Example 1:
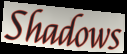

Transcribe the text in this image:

Shadows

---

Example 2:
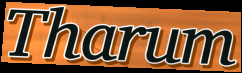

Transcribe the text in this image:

Tharum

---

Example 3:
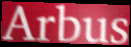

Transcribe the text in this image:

Arbus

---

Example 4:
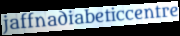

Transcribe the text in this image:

jaffnadiabeticcentre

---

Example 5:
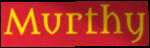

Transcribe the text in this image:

Murthy